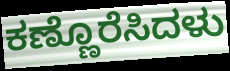
ಕಣ್ಣೊರೆಸಿದಳು